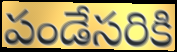
పండేసరికి